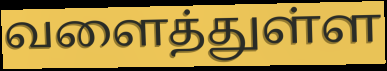
வளைத்துள்ள